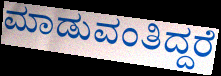
ಮಾಡುವಂತಿದ್ದರೆ